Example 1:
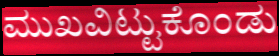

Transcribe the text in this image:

ಮುಖವಿಟ್ಟುಕೊಂಡು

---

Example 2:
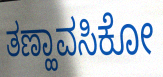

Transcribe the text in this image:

ತಣ್ಹಾವಸಿಕೋ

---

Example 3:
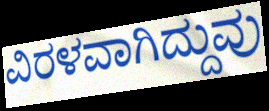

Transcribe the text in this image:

ವಿರಳವಾಗಿದ್ದುವು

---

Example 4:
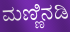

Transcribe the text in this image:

ಮಣ್ಣಿನಡಿ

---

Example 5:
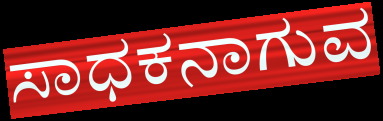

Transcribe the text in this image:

ಸಾಧಕನಾಗುವ